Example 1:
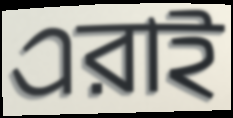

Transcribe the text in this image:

এরাই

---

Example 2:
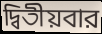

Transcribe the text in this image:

দ্বিতীয়বার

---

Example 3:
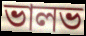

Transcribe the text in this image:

ভালভ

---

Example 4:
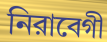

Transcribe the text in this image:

নিরাবেগী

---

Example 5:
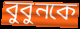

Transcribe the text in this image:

বুবুনকে